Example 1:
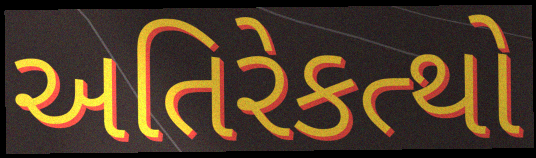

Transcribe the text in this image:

અતિરેકત્થો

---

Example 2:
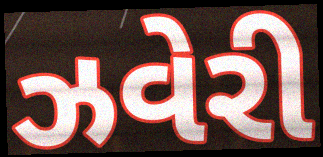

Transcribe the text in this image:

ઝવેરી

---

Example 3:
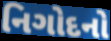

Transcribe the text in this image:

નિગોદનો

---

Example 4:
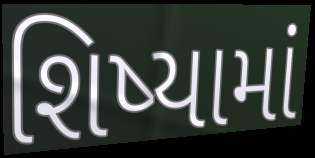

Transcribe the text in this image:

શિષ્યામાં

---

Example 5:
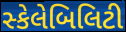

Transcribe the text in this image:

સ્કેલેબિલિટી